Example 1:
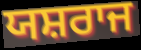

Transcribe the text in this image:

ਯਸ਼ਰਾਜ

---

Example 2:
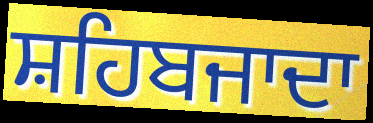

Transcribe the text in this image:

ਸ਼ਹਿਬਜਾਦਾ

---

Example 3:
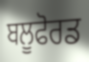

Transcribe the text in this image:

ਬਲੂਫੋਰਡ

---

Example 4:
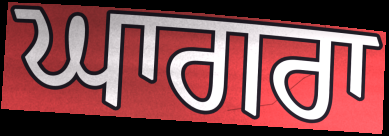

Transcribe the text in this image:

ਘਾਗਰਾ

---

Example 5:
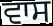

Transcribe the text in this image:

ਵਾਸ